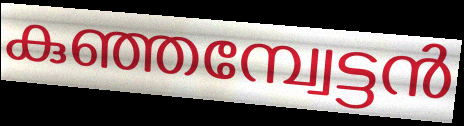
കുഞ്ഞമ്പ്വേട്ടൻ